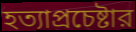
হত্যাপ্রচেষ্টার